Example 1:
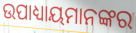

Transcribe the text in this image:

ଉପାଧ୍ୟାୟମାନଙ୍କର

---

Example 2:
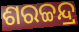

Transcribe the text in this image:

ଶରଚ୍ଚନ୍ଦ୍ର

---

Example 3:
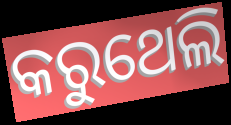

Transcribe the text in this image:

କରୁଥେଲି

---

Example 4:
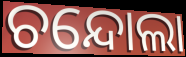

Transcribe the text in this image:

ଚନ୍ଦୋଲା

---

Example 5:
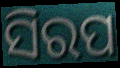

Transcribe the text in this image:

ସିରପ